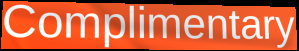
Complimentary